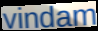
vindam